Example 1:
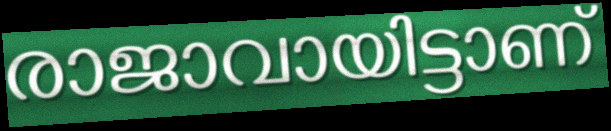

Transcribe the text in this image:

രാജാവായിട്ടാണ്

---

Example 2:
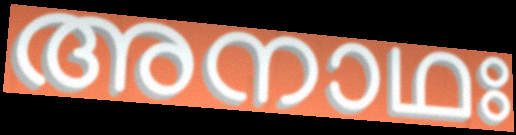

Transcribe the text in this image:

അനാഥഃ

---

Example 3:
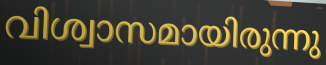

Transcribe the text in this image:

വിശ്വാസമായിരുന്നു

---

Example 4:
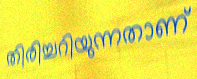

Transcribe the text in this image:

തിരിച്ചറിയുന്നതാണ്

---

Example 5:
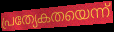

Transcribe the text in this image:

പ്രത്യേകതയെന്ന്